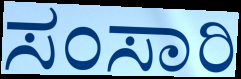
ಸಂಸಾರಿ